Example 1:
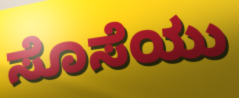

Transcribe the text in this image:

ಸೊಸೆಯು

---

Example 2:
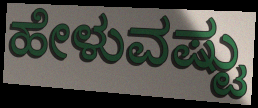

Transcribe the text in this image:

ಹೇಳುವಷ್ಟು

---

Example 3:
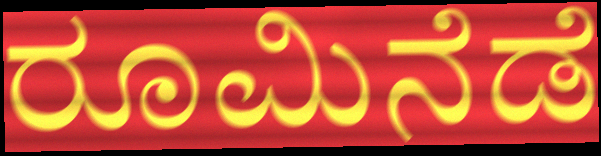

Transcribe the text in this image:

ರೂಮಿನೆಡೆ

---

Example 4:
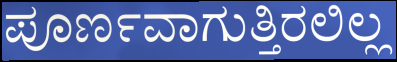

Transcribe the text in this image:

ಪೂರ್ಣವಾಗುತ್ತಿರಲಿಲ್ಲ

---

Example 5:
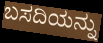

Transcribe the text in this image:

ಬಸದಿಯನ್ನು